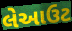
લેઆઉટ